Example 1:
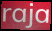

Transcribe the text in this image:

raja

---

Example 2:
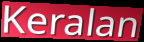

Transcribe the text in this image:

Keralan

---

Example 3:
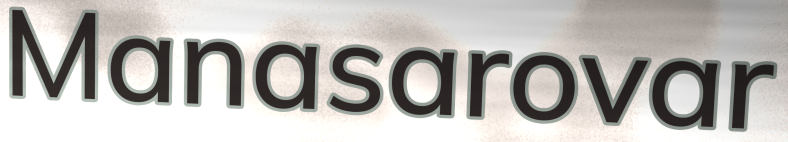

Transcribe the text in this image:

Manasarovar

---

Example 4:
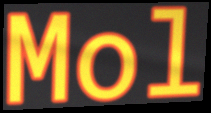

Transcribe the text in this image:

Mol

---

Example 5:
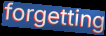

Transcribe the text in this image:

forgetting